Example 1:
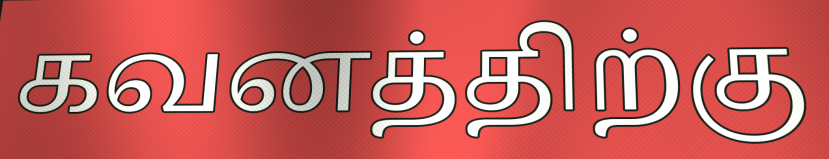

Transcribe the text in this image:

கவனத்திற்கு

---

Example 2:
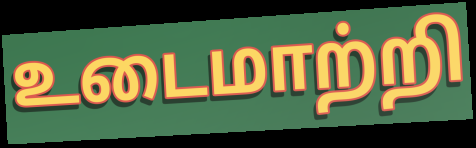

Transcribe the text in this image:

உடைமாற்றி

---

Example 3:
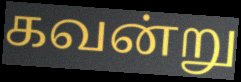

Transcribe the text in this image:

கவன்று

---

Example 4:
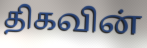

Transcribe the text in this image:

திகவின்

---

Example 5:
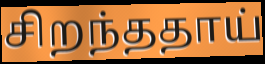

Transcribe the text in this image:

சிறந்ததாய்